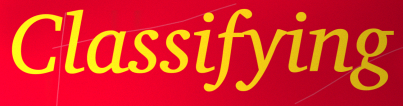
Classifying